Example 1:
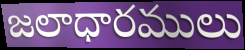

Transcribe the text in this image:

జలాధారములు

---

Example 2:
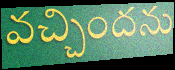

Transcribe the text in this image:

వచ్చిందను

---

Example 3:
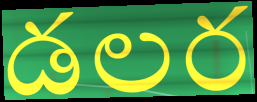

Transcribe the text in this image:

డలర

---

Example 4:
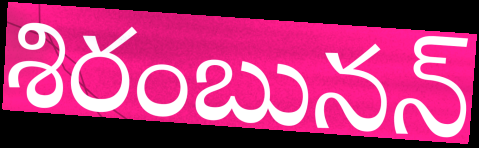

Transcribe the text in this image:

శిరంబునన్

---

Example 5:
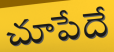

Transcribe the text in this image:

చూపేదే